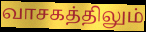
வாசகத்திலும்